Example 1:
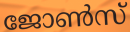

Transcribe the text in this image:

ജോൺസ്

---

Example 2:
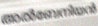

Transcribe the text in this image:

അൽബേനിയൻ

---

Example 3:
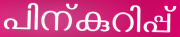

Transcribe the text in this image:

പിന്കുറിപ്പ്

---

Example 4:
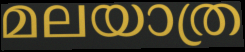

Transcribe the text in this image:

മലയാത്ര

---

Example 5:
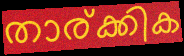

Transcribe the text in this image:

താര്ക്കിക